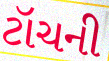
ટૉચની